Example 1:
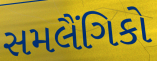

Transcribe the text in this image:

સમલૈંગિકો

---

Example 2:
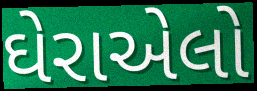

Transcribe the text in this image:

ઘેરાએલો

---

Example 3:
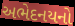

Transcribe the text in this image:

અભેદનયનો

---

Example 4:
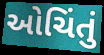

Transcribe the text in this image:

ઓચિંતું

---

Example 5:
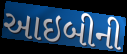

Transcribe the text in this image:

આઇબીની